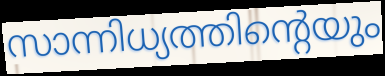
സാന്നിധ്യത്തിന്റെയും